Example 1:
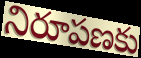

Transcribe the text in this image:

నిరూపణకు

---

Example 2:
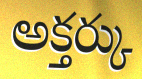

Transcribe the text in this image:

అక్తర్కు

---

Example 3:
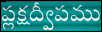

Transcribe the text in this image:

ప్లక్షద్వీపము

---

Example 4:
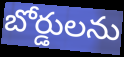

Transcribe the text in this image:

బోర్డులను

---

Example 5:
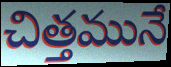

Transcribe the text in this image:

చిత్తమునే